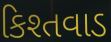
કિશ્તવાડ